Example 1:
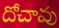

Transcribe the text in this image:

దోచావు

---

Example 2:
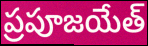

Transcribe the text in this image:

ప్రపూజయేత్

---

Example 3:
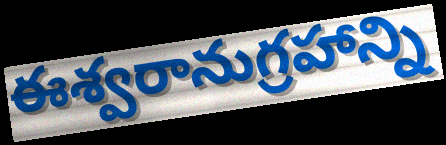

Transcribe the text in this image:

ఈశ్వరానుగ్రహాన్ని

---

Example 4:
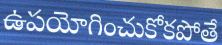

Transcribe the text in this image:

ఉపయోగించుకోకపోతే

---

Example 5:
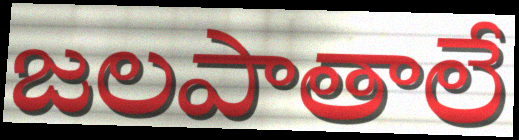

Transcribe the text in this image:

జలపాతాలే